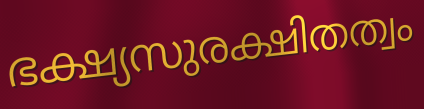
ഭക്ഷ്യസുരക്ഷിതത്വം